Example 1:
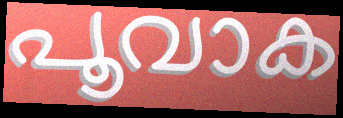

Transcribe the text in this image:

പൂവാക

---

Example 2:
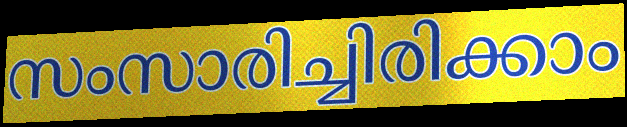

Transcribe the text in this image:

സംസാരിച്ചിരിക്കാം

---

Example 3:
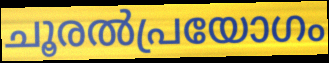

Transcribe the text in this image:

ചൂരൽപ്രയോഗം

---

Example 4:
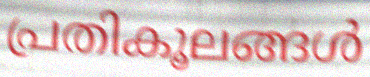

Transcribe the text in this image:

പ്രതികൂലങ്ങൾ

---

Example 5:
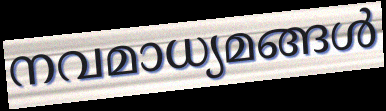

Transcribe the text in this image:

നവമാധ്യമങ്ങൾ